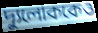
দ্যুলোককেও